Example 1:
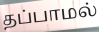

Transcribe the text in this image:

தப்பாமல்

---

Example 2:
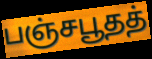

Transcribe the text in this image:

பஞ்சபூதத்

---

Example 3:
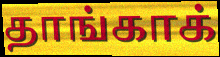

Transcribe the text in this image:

தாங்காக்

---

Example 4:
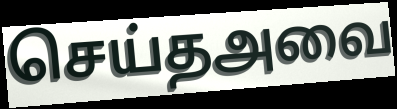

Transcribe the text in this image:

செய்தஅவை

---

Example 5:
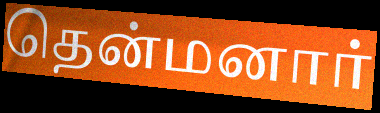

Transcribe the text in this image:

தென்மனார்